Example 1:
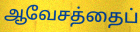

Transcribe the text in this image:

ஆவேசத்தைப்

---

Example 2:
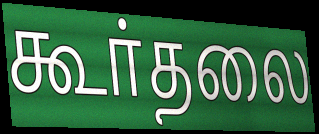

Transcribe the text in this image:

கூர்தலை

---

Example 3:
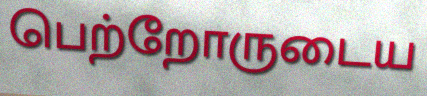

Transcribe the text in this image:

பெற்றோருடைய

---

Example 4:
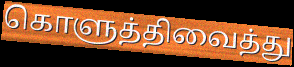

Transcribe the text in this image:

கொளுத்திவைத்து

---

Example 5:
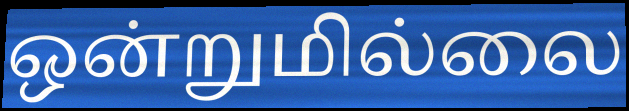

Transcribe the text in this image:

ஒன்றுமில்லை